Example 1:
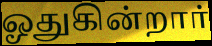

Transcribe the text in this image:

ஓதுகின்றார்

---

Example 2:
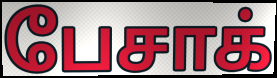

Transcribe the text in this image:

பேசாக்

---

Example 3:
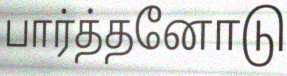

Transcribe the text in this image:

பார்த்தனோடு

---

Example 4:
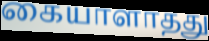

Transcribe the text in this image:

கையாளாதது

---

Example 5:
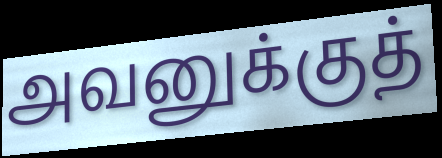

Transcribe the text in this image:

அவனுக்குத்